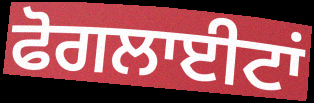
ਫੋਗਲਾਈਟਾਂ